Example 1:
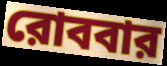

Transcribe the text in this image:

রোববার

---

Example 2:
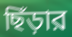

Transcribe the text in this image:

ছিঁড়ার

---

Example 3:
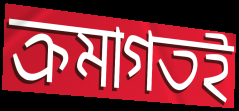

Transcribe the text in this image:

ক্রমাগতই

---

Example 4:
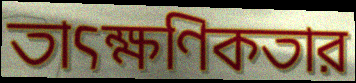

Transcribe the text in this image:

তাৎক্ষণিকতার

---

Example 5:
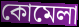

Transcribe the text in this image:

কোমেলা